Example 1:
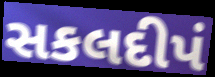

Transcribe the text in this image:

સકલદીપં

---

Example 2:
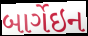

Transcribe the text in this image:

બાર્ગેઇન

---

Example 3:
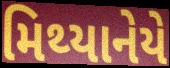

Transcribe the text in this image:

મિથ્યાનેયે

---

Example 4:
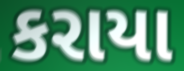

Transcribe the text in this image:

કરાયા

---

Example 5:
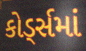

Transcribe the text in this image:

કોર્ડ્સમાં